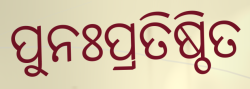
ପୁନଃପ୍ରତିଷ୍ଠିତ